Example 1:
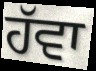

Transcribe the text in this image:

ਹੱਵਾ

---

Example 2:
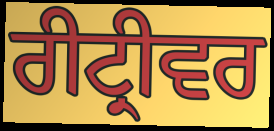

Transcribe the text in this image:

ਰੀਟ੍ਰੀਵਰ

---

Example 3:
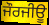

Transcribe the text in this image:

ਜੌਰਜੀਊ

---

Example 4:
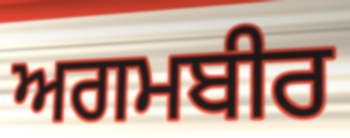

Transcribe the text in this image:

ਅਗਮਬੀਰ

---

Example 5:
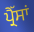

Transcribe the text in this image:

ਪ੍ਰੈੱਸਾਂ